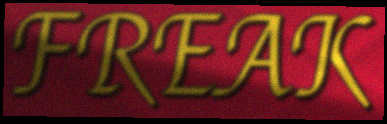
FREAK